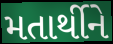
મતાર્થીને